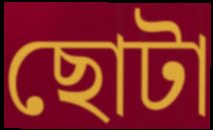
ছোটা